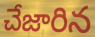
చేజారిన